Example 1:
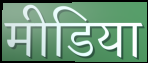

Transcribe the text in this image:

मीडिया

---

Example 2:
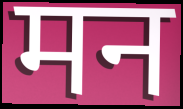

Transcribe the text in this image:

मन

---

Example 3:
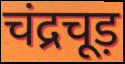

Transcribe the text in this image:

चंद्रचूड़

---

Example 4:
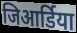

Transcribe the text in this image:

जिआर्डिया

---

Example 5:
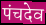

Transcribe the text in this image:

पंचदेव